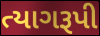
ત્યાગરૂપી